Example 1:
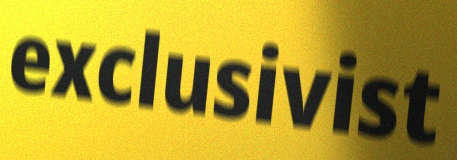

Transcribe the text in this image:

exclusivist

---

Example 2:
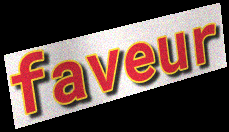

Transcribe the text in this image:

faveur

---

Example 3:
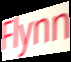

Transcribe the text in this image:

Flynn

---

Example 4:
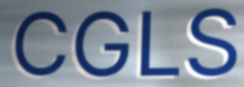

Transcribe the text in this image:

CGLS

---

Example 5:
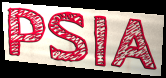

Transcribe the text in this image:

PSIA